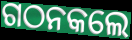
ଗଠନକଲେ